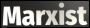
Marxist